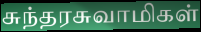
சுந்தரசுவாமிகள்